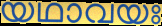
യഥാവയഃ